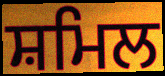
ਸ਼ਮਿਲ